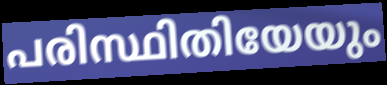
പരിസ്ഥിതിയേയും